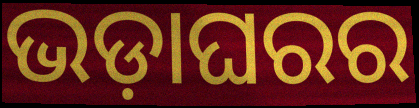
ଭଡ଼ାଘରର